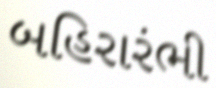
બહિરારંભી